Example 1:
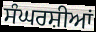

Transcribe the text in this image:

ਸੰਘਰਸ਼ੀਆਂ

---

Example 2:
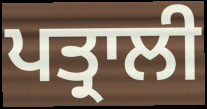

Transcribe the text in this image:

ਪਤ੍ਰਾਲੀ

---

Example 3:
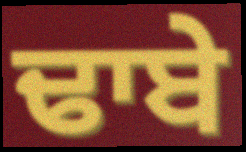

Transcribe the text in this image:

ਢਾਬੇ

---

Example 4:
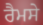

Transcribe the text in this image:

ਰੈਮਸੇ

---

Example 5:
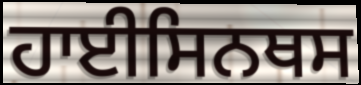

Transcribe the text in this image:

ਹਾਈਸਿਨਥਸ